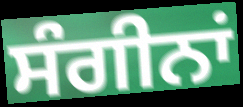
ਸੰਗੀਨਾਂ